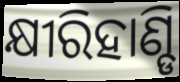
କ୍ଷୀରିହାଣ୍ଡି